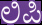
ಲಿಪಿ